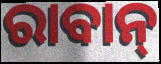
ରାବାନ୍